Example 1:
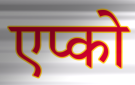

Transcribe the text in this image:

एप्को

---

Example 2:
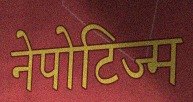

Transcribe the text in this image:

नेपोटिज्म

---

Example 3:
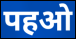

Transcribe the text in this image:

पहओ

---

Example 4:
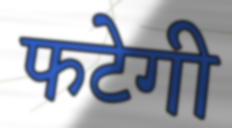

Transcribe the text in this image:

फटेगी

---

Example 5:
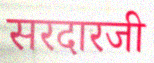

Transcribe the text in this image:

सरदारजी